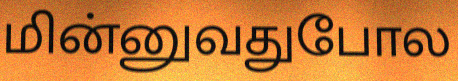
மின்னுவதுபோல